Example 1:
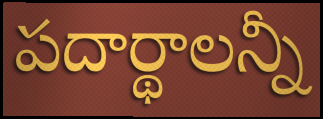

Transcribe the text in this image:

పదార్థాలన్నీ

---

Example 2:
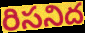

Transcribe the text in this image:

రిసనిద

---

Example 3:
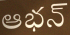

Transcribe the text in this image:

ఆభన్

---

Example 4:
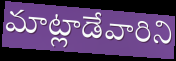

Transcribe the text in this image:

మాట్లాడేవారిని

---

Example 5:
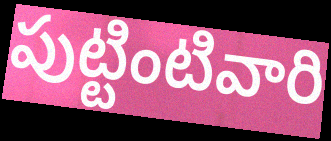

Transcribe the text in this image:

పుట్టింటివారి